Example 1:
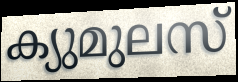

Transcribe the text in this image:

ക്യുമുലസ്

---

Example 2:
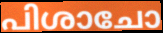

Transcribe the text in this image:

പിശാചോ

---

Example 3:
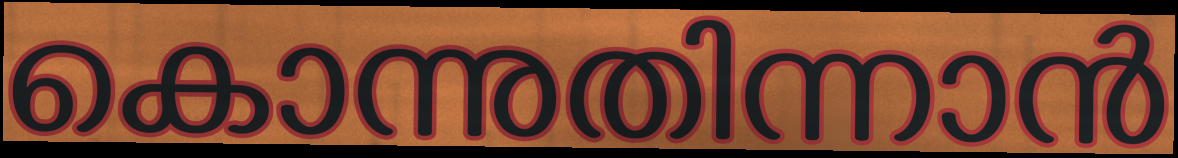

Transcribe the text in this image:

കൊന്നുതിന്നാൻ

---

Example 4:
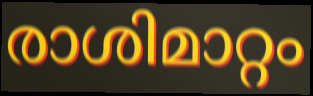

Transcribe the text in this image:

രാശിമാറ്റം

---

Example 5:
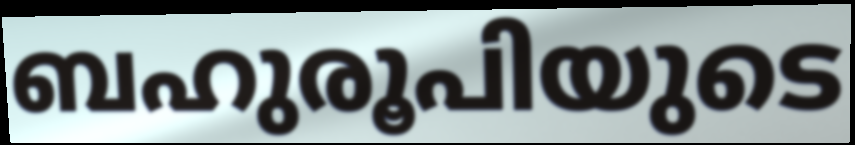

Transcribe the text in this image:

ബഹുരൂപിയുടെ